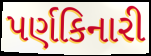
પર્ણકિનારી